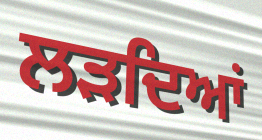
ਲੜਦਿਆਂ